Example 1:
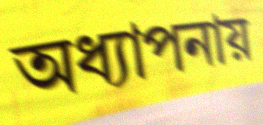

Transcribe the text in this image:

অধ্যাপনায়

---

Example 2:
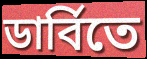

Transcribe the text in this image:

ডার্বিতে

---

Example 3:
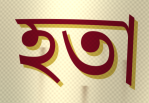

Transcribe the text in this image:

হতা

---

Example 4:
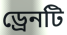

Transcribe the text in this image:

ড্রেনটি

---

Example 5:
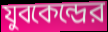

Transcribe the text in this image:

যুবকেন্দ্রের